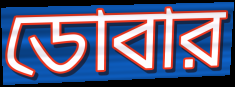
ডোবার